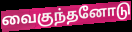
வைகுந்தனோடு